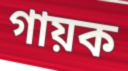
গায়ক